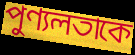
পুণ্যলতাকে